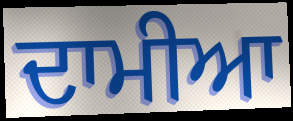
ਦਾਮੀਆ